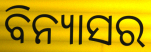
ବିନ୍ୟାସର